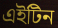
এইটিন